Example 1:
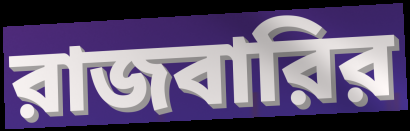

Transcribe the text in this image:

রাজবারির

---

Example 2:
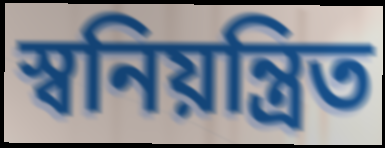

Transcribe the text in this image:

স্বনিয়ন্ত্রিত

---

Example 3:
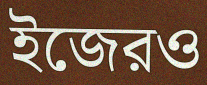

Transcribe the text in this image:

ইজেরও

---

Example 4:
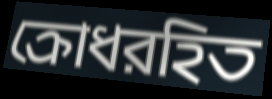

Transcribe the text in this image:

ক্রোধরহিত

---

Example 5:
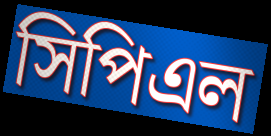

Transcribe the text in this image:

সিপিএল